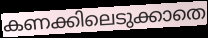
കണക്കിലെടുക്കാതെ